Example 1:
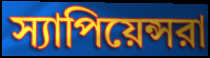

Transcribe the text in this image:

স্যাপিয়েন্সরা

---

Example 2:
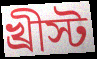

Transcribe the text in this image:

খ্রীস্ট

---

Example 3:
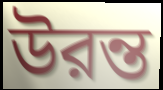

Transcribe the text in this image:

উরন্ত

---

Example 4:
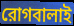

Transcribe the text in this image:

রোগবালাই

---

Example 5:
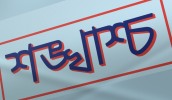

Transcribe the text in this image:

শঙ্খাশ্চ